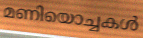
മണിയൊച്ചകൾ